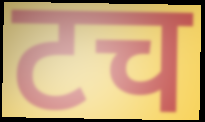
टच